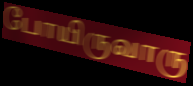
போயிருவாரு